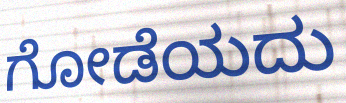
ಗೋಡೆಯದು